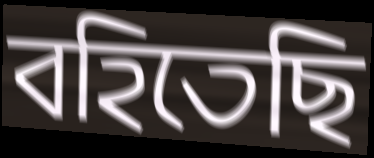
বহিতেছি